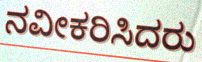
ನವೀಕರಿಸಿದರು